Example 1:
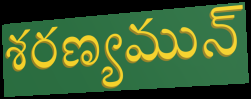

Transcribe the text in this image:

శరణ్యమున్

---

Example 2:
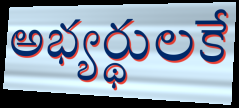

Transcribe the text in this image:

అభ్యర్థులకే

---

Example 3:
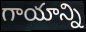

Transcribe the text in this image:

గాయాన్ని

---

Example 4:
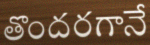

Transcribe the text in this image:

తొందరగానే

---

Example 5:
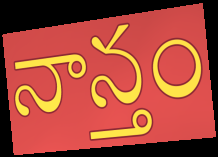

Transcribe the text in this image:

నాన్తం